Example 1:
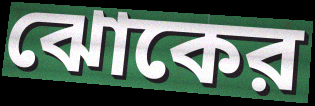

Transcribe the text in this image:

ঝোকের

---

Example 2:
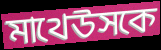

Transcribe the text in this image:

মাথেউসকে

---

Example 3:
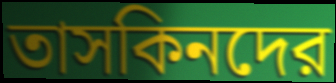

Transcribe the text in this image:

তাসকিনদের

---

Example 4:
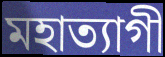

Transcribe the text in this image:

মহাত্যাগী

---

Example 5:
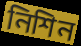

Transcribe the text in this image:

নিশিন